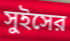
সুইসের